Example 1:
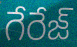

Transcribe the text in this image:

గేరేజ్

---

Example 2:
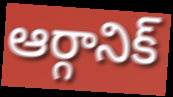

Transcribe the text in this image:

ఆర్గానిక్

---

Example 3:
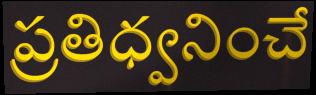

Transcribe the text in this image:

ప్రతిధ్వనించే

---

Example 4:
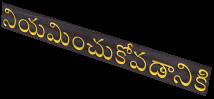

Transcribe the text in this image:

నియమించుకోవడానికి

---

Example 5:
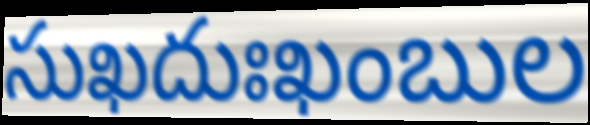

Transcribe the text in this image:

సుఖదుఃఖంబుల